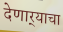
देणार्याचा